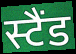
स्टैंड